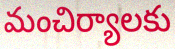
మంచిర్యాలకు